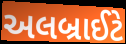
અલબ્રાઈટે